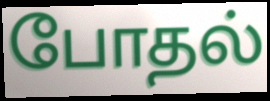
போதல்